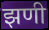
झणी